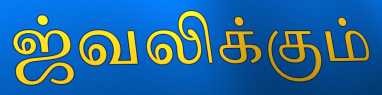
ஜ்வலிக்கும்